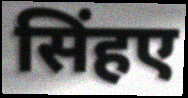
सिंहए